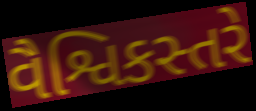
વૈશ્વિકસ્તરે